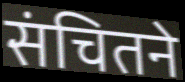
संचितने